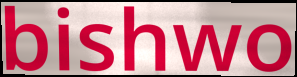
bishwo